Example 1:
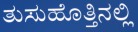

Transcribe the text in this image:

ತುಸುಹೊತ್ತಿನಲ್ಲಿ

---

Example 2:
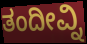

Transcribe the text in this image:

ತಂದೀವ್ನಿ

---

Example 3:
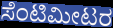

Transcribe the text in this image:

ಸೆಂಟಿಮೀಟರ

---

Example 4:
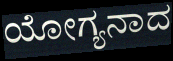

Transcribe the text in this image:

ಯೋಗ್ಯನಾದ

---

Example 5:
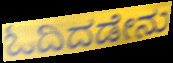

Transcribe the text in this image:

ಓದಿದಡೇನು